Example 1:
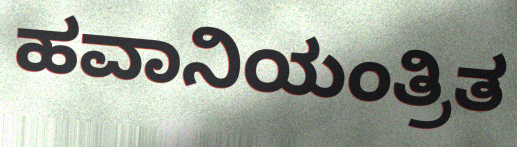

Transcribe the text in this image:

ಹವಾನಿಯಂತ್ರಿತ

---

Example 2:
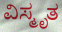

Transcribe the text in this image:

ವಿಸ್ಮೃತ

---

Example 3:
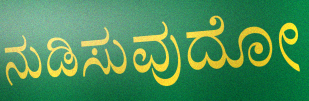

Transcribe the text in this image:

ನುಡಿಸುವುದೋ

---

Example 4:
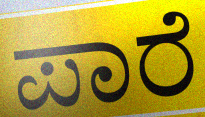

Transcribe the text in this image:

ಪಾರೆ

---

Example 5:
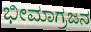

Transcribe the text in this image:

ಭೀಮಾಗ್ರಜನ